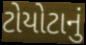
ટોયોટાનું